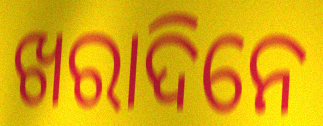
ଖରାଦିନେ